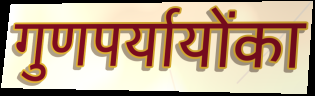
गुणपर्यायोंका